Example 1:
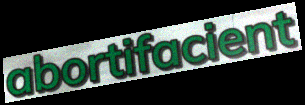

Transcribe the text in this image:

abortifacient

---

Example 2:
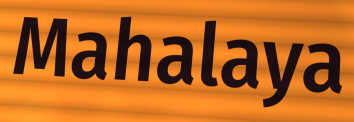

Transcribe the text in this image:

Mahalaya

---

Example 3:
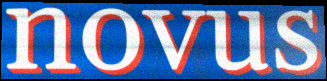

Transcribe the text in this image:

novus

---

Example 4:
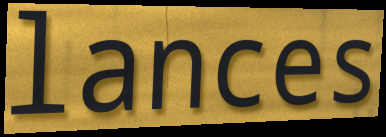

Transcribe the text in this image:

lances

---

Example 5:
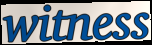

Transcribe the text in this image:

witness